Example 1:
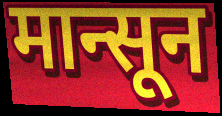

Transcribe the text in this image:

मान्सून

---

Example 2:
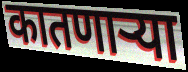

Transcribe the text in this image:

कातणाऱ्या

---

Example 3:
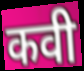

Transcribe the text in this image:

कवी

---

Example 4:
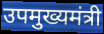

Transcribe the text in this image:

उपमुख्यमंत्री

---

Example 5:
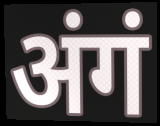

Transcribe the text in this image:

अंगं